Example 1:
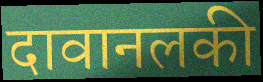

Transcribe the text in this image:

दावानलकी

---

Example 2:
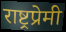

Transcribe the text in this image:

राष्ट्रप्रेमी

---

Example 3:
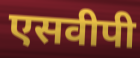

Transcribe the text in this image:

एसवीपी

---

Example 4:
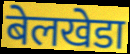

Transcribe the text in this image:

बेलखेडा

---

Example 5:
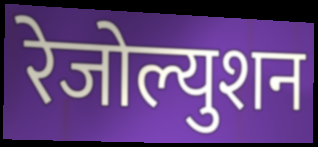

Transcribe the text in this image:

रेजोल्युशन